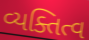
વ્યક્તિત્વ